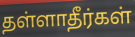
தள்ளாதீர்கள்